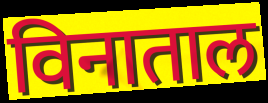
विनाताल